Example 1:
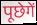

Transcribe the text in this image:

पूछेगें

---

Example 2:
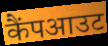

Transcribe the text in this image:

कैंपआउट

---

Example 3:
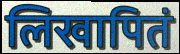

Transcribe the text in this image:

लिखापितं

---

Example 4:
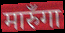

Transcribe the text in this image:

मारुँगा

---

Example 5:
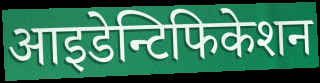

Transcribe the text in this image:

आइडेन्टिफिकेशन